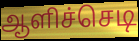
ஆளிச்செடி